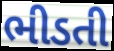
ભીડતી